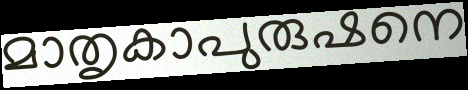
മാതൃകാപുരുഷനെ